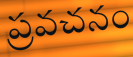
ప్రవచనం